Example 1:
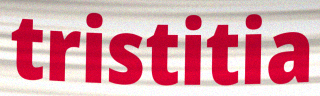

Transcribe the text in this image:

tristitia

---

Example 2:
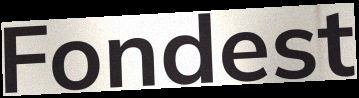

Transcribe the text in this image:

Fondest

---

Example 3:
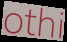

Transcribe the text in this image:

othi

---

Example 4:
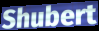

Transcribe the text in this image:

Shubert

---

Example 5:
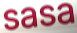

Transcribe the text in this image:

sasa